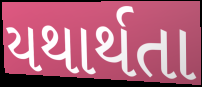
યથાર્થતા